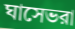
ঘাসেভরা